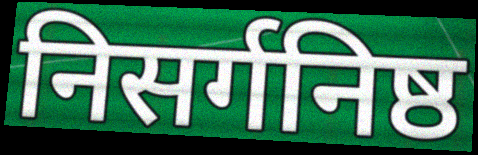
निसर्गनिष्ठ